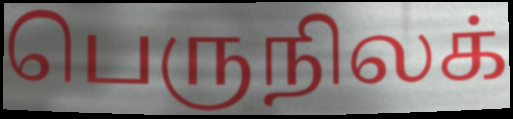
பெருநிலக்